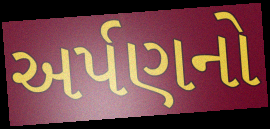
અર્પણનો